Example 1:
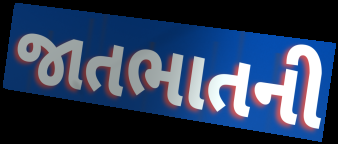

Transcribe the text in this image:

જાતભાતની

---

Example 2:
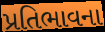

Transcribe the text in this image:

પ્રતિભાવના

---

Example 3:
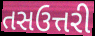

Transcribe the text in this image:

તસઉત્તરી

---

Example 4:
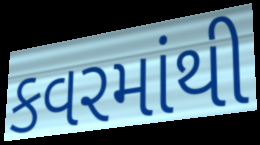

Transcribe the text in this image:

કવરમાંથી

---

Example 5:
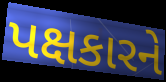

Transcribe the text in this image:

પક્ષકારને